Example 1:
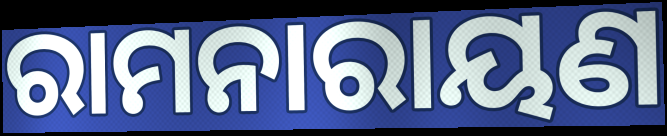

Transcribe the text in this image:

ରାମନାରାୟଣ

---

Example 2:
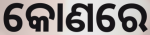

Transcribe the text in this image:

କୋଣରେ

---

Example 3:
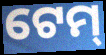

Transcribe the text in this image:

ଟେମ୍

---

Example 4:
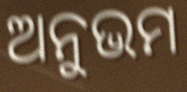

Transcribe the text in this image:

ଅନୁଭମ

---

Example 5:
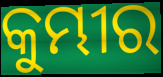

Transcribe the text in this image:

କୁମ୍ଭୀର